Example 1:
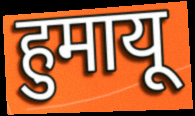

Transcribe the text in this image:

हुमायू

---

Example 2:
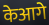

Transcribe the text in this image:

केआगे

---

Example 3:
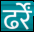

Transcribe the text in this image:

ढर्रें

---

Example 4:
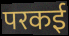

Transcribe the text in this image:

परकई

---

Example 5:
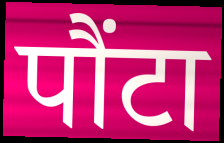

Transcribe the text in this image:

पौंटा